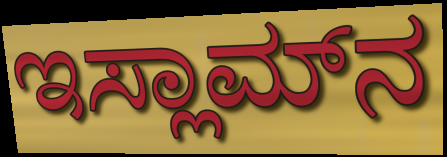
ಇಸ್ಲಾಮ್‌ನ